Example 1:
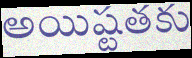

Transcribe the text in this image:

అయిష్టతకు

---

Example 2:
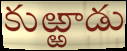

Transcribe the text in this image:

కుఱ్ఱాడు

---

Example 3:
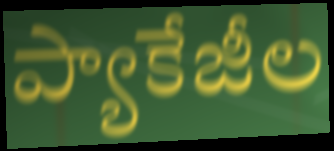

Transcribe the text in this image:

ప్యాకేజీల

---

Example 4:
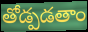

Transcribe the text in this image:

తోడ్పడతాం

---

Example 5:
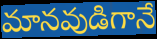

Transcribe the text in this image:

మానవుడిగానే